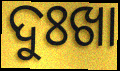
ଦୁଃଖା